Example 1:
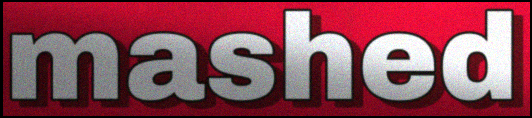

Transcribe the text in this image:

mashed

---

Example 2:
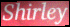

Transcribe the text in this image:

Shirley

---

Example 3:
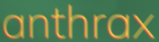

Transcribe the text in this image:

anthrax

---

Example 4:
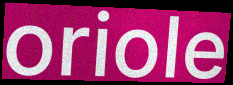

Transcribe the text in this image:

oriole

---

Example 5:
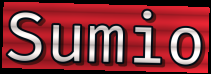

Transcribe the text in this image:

Sumio